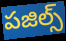
పజిల్స్